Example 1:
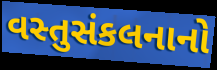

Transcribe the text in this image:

વસ્તુસંકલનાનો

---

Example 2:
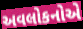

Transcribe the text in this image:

અવલોકનોએ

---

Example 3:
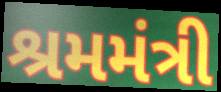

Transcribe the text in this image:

શ્રમમંત્રી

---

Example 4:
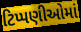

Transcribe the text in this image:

ટિપ્પણીઓમાં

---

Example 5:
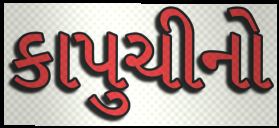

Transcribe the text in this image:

કાપુચીનો